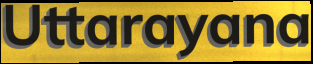
Uttarayana